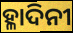
ହ୍ଳାଦିନୀ